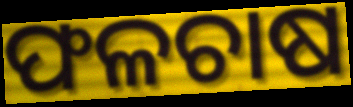
ଫଳଚାଷ